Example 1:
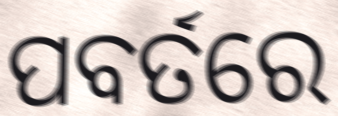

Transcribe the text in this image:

ପବର୍ତରେ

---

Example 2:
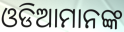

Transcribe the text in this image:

ଓଡିଆମାନଙ୍କ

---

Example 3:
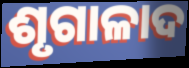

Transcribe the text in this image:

ଶୃଗାଳାଦ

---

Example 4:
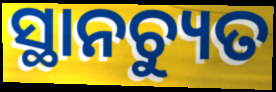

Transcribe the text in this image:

ସ୍ଥାନଚ୍ୟୁତ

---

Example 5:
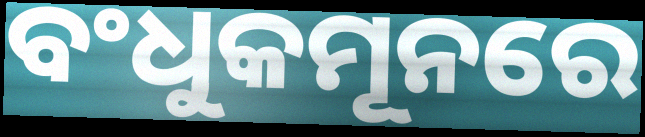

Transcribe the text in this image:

ବଂଧୁକମୂନରେ